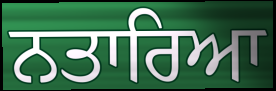
ਨਤਾਰਿਆ